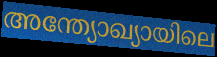
അന്ത്യോഖ്യായിലെ